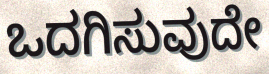
ಒದಗಿಸುವುದೇ